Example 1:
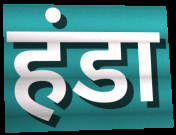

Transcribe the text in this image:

हंडा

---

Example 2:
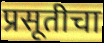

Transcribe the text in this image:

प्रसूतीचा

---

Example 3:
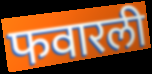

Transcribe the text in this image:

फवारली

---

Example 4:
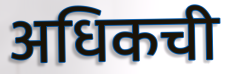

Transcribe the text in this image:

अधिकची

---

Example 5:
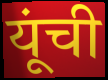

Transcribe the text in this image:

यूंची